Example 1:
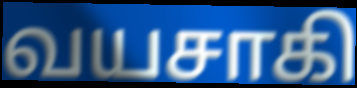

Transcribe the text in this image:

வயசாகி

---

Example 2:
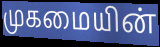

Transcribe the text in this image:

முகமையின்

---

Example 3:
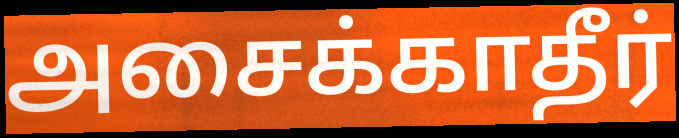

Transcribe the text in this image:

அசைக்காதீர்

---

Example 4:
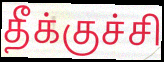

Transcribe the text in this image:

தீக்குச்சி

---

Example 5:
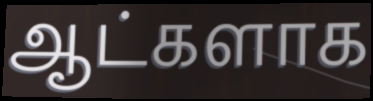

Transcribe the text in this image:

ஆட்களாக